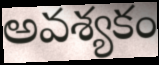
అవశ్యకం